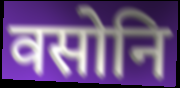
वसोनि